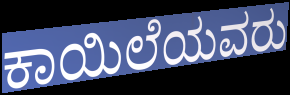
ಕಾಯಿಲೆಯವರು